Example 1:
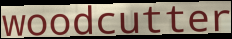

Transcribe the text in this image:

woodcutter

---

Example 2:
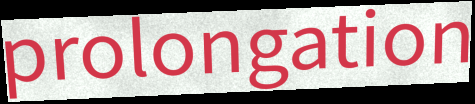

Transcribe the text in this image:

prolongation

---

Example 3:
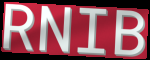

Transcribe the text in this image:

RNIB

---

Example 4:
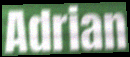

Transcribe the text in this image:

Adrian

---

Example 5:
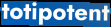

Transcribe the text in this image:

totipotent